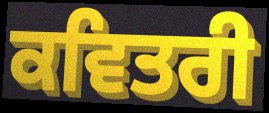
ਕਵਿਤਰੀ